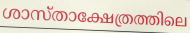
ശാസ്താക്ഷേത്രത്തിലെ